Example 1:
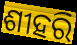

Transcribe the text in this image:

ଶୀହରି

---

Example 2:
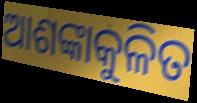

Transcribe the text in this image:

ଆଶଙ୍କାକୁଳିତ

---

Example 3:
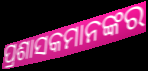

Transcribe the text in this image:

ପ୍ରଶାସକମାନଙ୍କର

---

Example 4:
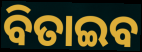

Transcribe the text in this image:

ବିତାଇବ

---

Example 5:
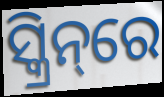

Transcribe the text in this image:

ସ୍କ୍ରିନ୍‌ରେ